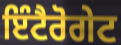
ਇੰਟੈਰੋਗੇਟ